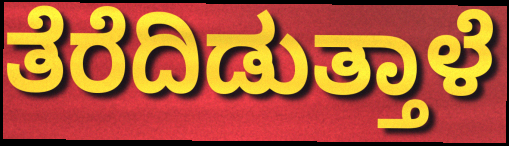
ತೆರೆದಿಡುತ್ತಾಳೆ